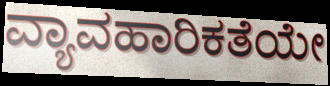
ವ್ಯಾವಹಾರಿಕತೆಯೇ